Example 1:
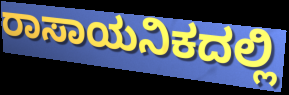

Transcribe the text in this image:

ರಾಸಾಯನಿಕದಲ್ಲಿ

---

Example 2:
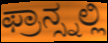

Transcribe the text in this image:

ಫ್ರಾನ್ಸ್ನಲ್ಲಿ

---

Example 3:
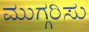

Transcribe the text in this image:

ಮುಗ್ಗರಿಸು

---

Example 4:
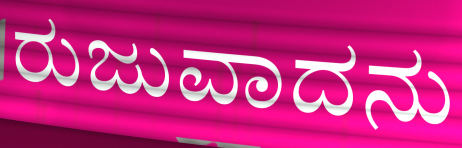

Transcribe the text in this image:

ರುಜುವಾದನು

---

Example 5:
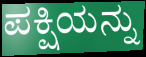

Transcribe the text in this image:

ಪಕ್ಷಿಯನ್ನು